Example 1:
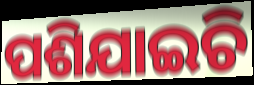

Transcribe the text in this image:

ପଶିଯାଇଚି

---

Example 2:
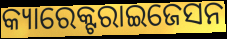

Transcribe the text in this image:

କ୍ୟାରେକ୍ଟରାଇଜେସନ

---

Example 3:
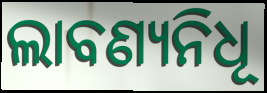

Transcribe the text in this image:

ଲାବଣ୍ୟନିଧୂ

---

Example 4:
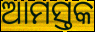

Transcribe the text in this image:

ଆମସ୍ତକ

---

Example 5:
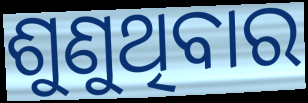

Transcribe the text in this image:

ଶୁଣୁଥିବାର